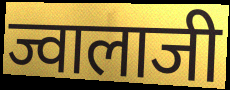
ज्वालाजी